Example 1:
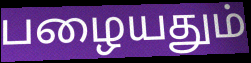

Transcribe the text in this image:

பழையதும்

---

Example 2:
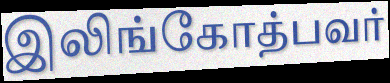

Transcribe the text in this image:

இலிங்கோத்பவர்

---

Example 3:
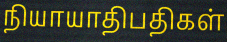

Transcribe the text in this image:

நியாயாதிபதிகள்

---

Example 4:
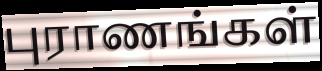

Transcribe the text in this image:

புராணங்கள்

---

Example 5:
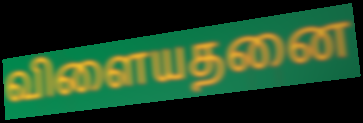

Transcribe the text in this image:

விளையதனை